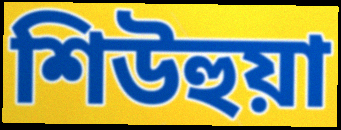
শিউহুয়া